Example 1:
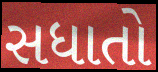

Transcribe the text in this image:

સધાતો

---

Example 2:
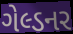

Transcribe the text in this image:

ગેલ્ડનર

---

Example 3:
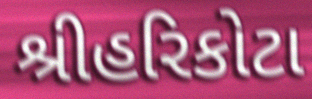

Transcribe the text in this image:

શ્રીહરિકોટા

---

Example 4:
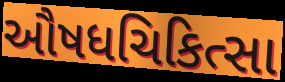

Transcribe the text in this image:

ઔષધચિકિત્સા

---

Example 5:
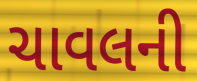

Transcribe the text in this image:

ચાવલની